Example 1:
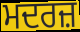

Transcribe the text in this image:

ਮਦਰਜ਼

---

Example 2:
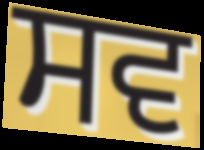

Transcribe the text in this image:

ਸਵ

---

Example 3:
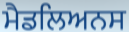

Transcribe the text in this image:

ਮੈਡਲਿਅਨਸ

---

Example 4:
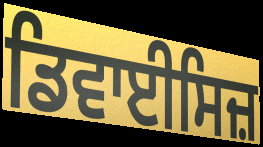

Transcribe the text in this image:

ਡਿਵਾਈਸਿਜ਼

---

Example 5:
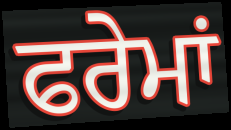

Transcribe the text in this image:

ਫਰੇਮਾਂ